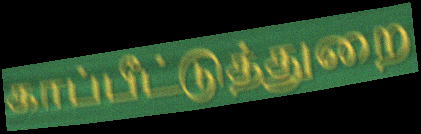
காப்பீட்டுத்துறை